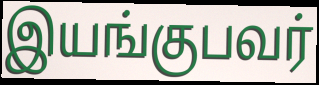
இயங்குபவர்